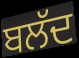
ਬਲੱਦ